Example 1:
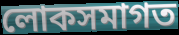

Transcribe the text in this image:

লোকসমাগত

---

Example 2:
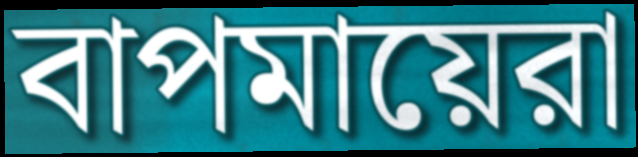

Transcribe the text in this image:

বাপমায়েরা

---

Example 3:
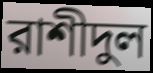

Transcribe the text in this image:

রাশীদুল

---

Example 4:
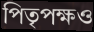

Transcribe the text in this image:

পিতৃপক্ষও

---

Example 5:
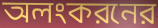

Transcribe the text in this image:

অলংকরনের